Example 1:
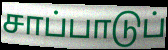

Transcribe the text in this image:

சாப்பாடுப்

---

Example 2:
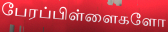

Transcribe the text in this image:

பேரப்பிள்ளைகளோ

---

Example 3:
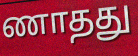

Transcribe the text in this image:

ணாதது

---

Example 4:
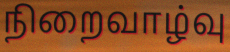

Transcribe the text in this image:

நிறைவாழ்வு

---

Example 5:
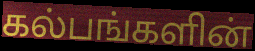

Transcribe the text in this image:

கல்பங்களின்